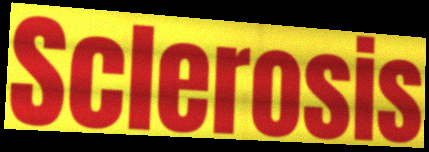
Sclerosis